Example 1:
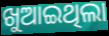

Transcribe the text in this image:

ଖୁଆଇଥିଲା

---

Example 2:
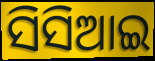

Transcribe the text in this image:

ସିସିଆଇ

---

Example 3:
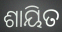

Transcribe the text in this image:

ଶାୟିତ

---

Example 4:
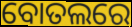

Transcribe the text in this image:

ବୋତଲରେ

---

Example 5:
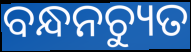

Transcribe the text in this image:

ବନ୍ଧନଚ୍ୟୁତ